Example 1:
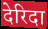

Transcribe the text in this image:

देरिदा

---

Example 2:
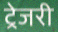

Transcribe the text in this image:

ट्रेजरी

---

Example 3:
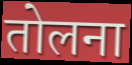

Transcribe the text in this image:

तोलना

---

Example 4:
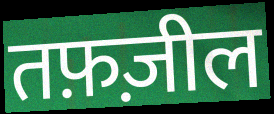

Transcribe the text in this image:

तफ़ज़ील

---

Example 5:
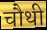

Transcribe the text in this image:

चौथी